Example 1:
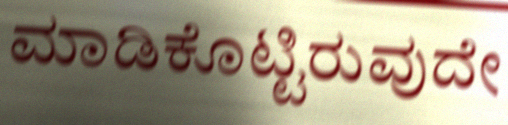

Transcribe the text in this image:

ಮಾಡಿಕೊಟ್ಟಿರುವುದೇ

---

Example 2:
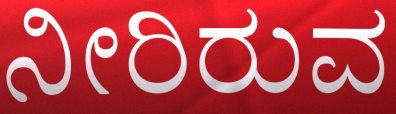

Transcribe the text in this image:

ನೀರಿರುವ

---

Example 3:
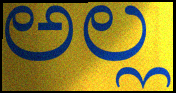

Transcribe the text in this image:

ಅಲ್ಲ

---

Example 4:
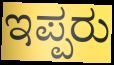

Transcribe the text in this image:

ಇಪ್ಪರು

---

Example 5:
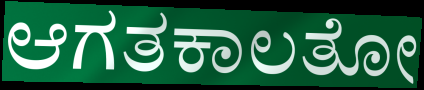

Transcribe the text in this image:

ಆಗತಕಾಲತೋ